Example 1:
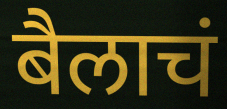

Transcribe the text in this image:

बैलाचं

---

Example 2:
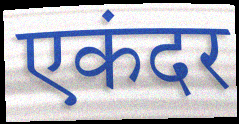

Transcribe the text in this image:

एकंदर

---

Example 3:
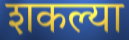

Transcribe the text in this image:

शकल्या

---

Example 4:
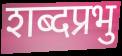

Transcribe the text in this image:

शब्दप्रभु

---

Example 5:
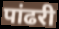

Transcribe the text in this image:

पांढरी